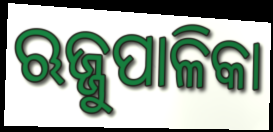
ଋଜ୍ଜୁପାଳିକା